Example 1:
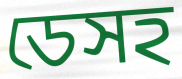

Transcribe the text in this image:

ডেসহ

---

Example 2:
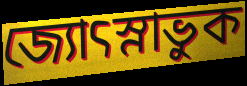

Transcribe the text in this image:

জ্যোৎস্নাভুক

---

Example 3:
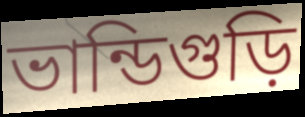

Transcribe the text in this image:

ভান্ডিগুড়ি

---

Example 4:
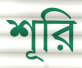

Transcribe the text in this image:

শূরি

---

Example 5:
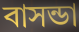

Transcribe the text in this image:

বাসন্ডা